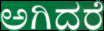
ಅಗಿದರೆ